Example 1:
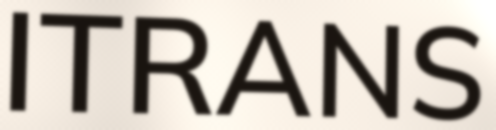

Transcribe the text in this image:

ITRANS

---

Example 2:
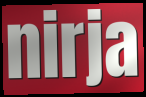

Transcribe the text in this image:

nirja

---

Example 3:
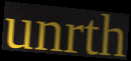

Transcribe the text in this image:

unrth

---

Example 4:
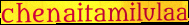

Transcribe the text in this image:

chenaitamilulaa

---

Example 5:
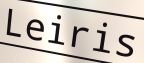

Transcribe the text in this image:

Leiris